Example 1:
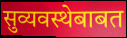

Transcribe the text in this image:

सुव्यवस्थेबाबत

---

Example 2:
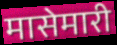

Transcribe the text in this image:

मासेमारी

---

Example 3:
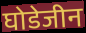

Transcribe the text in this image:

घोडेजीन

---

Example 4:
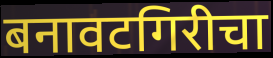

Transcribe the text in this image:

बनावटगिरीचा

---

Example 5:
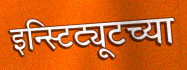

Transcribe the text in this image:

इन्स्टिट्यूटच्या